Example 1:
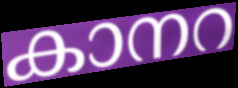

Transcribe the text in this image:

കാനറ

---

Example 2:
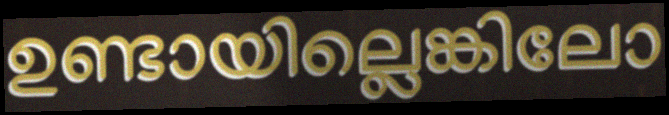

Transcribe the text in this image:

ഉണ്ടായില്ലെങ്കിലോ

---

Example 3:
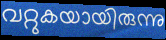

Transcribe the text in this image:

വറ്റുകയായിരുന്നു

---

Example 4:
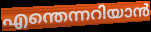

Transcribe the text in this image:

എന്തെന്നറിയാൻ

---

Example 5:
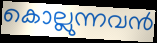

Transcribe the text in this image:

കൊല്ലുന്നവൻ